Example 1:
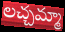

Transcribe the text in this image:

లచ్చమ్మా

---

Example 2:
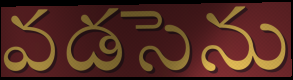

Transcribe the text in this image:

వడసెను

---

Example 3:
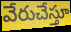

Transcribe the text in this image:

వేరుచేస్తూ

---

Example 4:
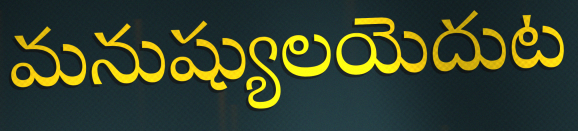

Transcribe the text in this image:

మనుష్యులయెదుట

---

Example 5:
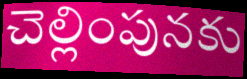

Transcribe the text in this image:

చెల్లింపునకు